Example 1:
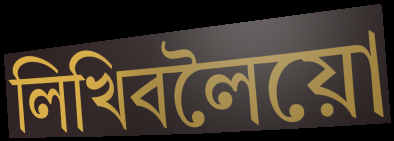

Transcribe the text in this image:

লিখিবলৈয়ো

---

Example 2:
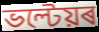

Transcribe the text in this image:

ভল্টেয়ৰ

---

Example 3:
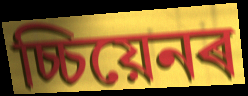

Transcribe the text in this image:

চ্চিয়েনৰ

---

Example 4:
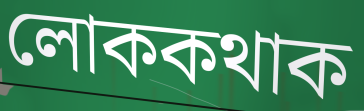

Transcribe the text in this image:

লোককথাক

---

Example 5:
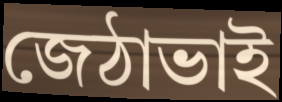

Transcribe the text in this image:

জেঠাভাই